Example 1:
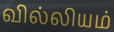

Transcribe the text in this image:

வில்லியம்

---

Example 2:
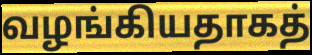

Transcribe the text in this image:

வழங்கியதாகத்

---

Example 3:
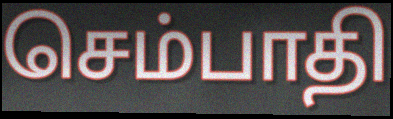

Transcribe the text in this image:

செம்பாதி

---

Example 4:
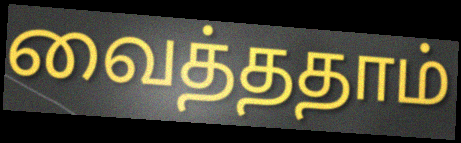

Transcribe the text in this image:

வைத்ததாம்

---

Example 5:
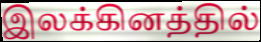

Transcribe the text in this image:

இலக்கினத்தில்